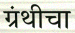
ग्रंथीचा